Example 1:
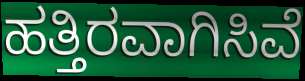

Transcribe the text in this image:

ಹತ್ತಿರವಾಗಿಸಿವೆ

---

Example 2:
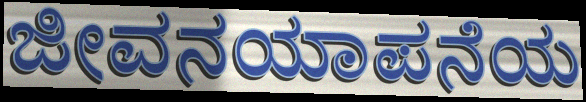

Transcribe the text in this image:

ಜೀವನಯಾಪನೆಯ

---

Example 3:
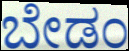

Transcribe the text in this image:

ಬೇಡಂ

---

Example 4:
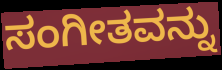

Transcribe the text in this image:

ಸಂಗೀತವನ್ನು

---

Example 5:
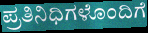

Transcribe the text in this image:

ಪ್ರತಿನಿಧಿಗಳೊಂದಿಗೆ